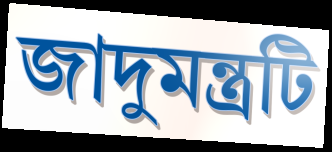
জাদুমন্ত্রটি